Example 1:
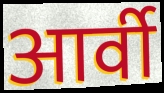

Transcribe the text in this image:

आर्वी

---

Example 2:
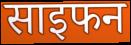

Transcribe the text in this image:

साइफन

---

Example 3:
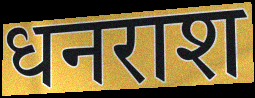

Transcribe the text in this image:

धनराश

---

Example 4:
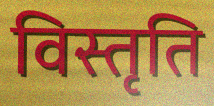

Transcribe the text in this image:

विस्तृति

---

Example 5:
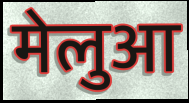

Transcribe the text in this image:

मेलुआ